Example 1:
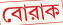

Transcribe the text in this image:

বোরাক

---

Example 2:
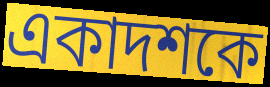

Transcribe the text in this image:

একাদশকে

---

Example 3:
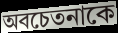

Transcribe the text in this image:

অবচেতনাকে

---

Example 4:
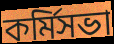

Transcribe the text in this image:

কর্মিসভা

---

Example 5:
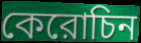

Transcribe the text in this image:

কেরোচিন